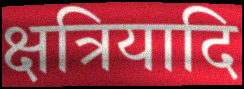
क्षत्रियादि